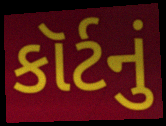
કૉર્ટનું